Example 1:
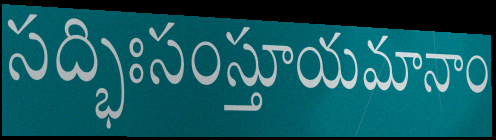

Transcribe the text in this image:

సద్భిఃసంస్తూయమానాం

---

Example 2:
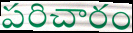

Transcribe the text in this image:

పరిచారం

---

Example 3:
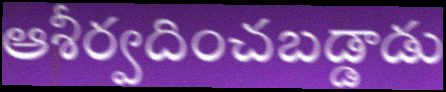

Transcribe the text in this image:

ఆశీర్వదించబడ్డాడు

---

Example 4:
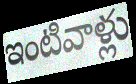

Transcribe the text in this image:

ఇంటివాళ్లు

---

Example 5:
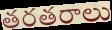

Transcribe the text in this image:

తరతరాలు